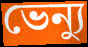
ভেন্যু